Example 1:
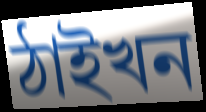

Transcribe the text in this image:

ঠাইখন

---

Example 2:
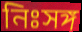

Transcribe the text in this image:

নিঃসঙ্গ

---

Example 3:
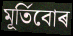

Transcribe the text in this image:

মূৰ্তিবোৰ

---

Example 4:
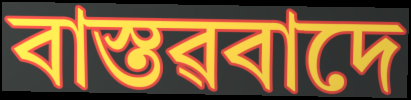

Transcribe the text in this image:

বাস্তৱবাদে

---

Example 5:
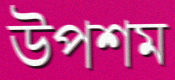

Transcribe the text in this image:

উপশম